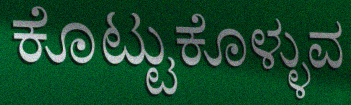
ಕೊಟ್ಟುಕೊಳ್ಳುವ